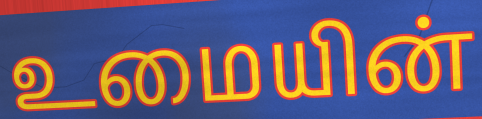
உமையின்